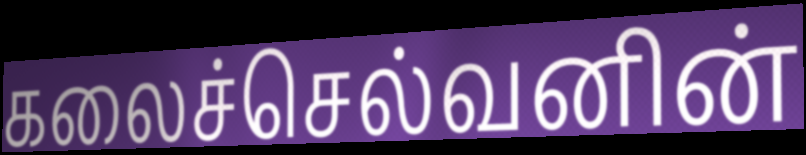
கலைச்செல்வனின்